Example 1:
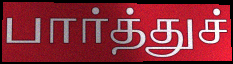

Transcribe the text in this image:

பார்த்துச்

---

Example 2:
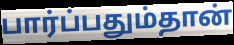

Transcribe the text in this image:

பார்ப்பதும்தான்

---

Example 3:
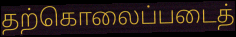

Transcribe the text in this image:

தற்கொலைப்படைத்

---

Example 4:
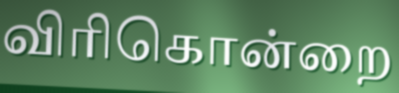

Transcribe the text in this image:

விரிகொன்றை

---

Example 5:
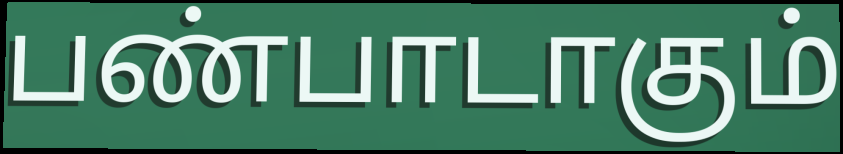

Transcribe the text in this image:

பண்பாடாகும்